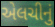
એલચીનું